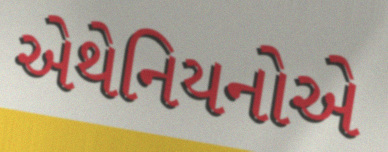
એથેનિયનોએ